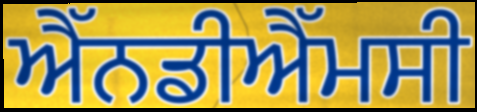
ਐੱਨਡੀਐੱਮਸੀ